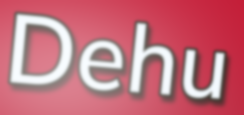
Dehu